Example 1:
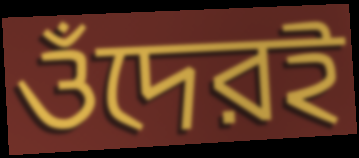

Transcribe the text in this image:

ওঁদেরই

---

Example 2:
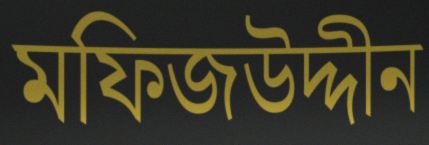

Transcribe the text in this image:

মফিজউদ্দীন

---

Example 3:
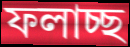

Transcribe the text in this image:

ফলাচ্ছ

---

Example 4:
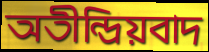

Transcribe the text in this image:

অতীন্দ্রিয়বাদ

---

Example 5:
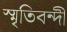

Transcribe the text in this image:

স্মৃতিবন্দী